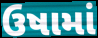
ઉષામાં